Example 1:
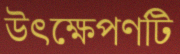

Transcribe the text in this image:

উৎক্ষেপণটি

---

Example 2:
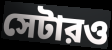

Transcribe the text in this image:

সেটারও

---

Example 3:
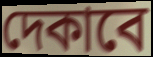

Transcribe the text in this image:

দেকাবে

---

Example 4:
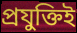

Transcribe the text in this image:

প্রযুক্তিই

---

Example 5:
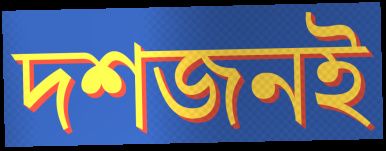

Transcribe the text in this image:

দশজনই